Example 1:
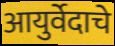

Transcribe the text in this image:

आयुर्वेदाचे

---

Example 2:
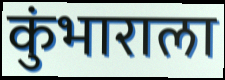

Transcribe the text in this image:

कुंभाराला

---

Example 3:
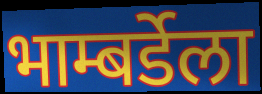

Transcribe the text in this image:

भाम्बर्डेला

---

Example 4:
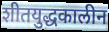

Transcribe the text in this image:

शीतयुद्धकालीन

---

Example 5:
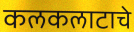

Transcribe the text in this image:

कलकलाटाचे